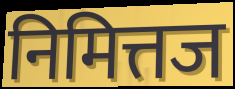
निमित्तज